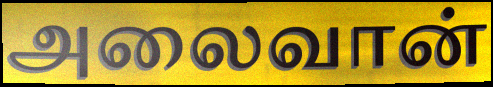
அலைவான்